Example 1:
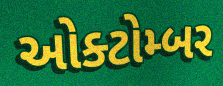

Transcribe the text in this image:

ઓક્ટોમ્બર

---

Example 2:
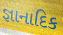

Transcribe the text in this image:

જ્ઞાનાદિક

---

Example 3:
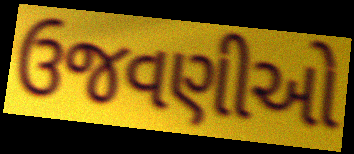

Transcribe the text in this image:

ઉજવણીઓ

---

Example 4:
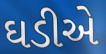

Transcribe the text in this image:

ઘડીએ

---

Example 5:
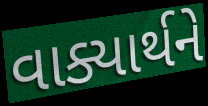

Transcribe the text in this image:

વાક્યાર્થને